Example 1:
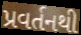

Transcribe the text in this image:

પ્રવર્તનથી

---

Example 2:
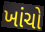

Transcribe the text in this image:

ખાંચો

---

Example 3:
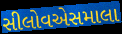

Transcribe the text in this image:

સીલોવએસમાલા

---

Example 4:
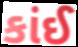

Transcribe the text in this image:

કાંઈ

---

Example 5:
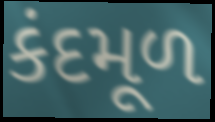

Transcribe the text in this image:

કંદમૂળ